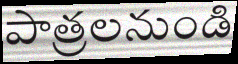
పాత్రలనుండి